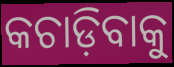
କଚାଡ଼ିବାକୁ